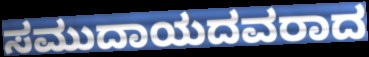
ಸಮುದಾಯದವರಾದ